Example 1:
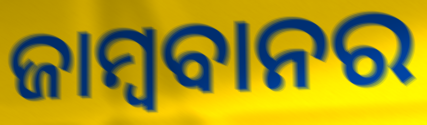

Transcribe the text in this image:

ଜାମ୍ବବାନର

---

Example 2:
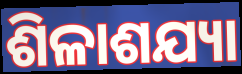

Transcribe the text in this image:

ଶିଳାଶଯ୍ୟା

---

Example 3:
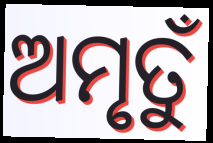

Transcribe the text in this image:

ଅମୃତୁଁ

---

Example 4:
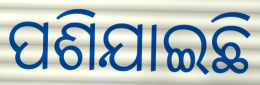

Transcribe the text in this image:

ପଶିଯାଇଛି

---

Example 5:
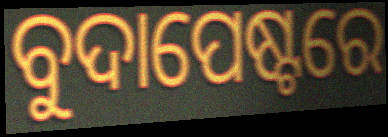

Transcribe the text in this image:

ବୁଦାପେଷ୍ଟରେ